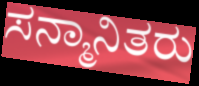
ಸನ್ಮಾನಿತರು